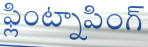
ఫ్లింట్నాపింగ్